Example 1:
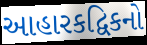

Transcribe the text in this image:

આહારકદ્વિકનો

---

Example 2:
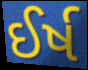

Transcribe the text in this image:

ઈર્ષ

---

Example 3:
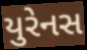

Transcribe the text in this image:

યુરેનસ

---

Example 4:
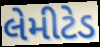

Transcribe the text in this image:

લેમીટેડ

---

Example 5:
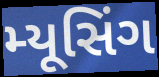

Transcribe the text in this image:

મ્યૂસિંગ